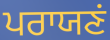
ਪਰਾਯਣਂ